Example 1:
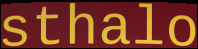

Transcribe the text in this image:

sthalo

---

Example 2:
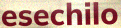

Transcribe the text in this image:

esechilo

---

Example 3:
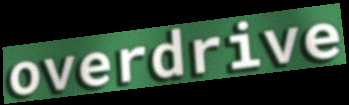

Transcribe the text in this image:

overdrive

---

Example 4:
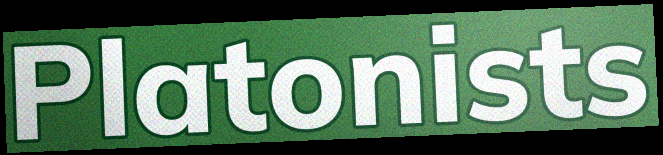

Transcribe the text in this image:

Platonists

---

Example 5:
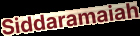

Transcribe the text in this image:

Siddaramaiah